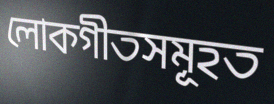
লোকগীতসমূহত